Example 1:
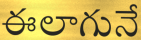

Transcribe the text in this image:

ఈలాగునే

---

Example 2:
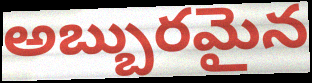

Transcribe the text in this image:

అబ్బురమైన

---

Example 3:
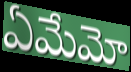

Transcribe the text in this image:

ఏమేమో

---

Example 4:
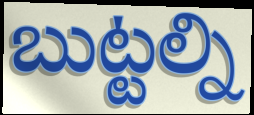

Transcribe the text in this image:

బుట్టల్ని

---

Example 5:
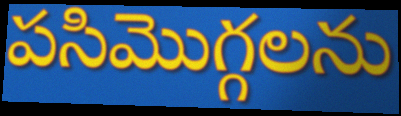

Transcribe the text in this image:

పసిమొగ్గలను